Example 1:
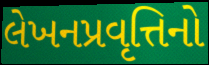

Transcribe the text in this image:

લેખનપ્રવૃત્તિનો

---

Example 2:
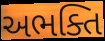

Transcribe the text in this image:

અભક્તિ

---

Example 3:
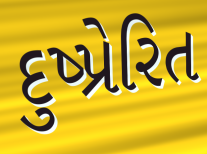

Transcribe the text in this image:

દુષ્પ્રેરિત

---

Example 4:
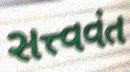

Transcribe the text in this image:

સત્ત્વવંત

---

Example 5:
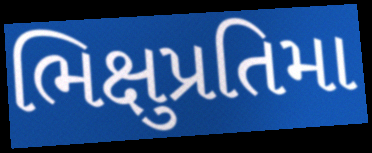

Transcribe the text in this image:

ભિક્ષુપ્રતિમા